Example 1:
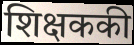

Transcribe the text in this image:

शिक्षककी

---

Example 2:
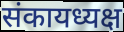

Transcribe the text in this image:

संकायध्यक्ष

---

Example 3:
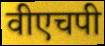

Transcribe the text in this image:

वीएचपी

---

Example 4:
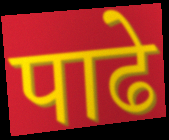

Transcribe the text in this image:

पाढे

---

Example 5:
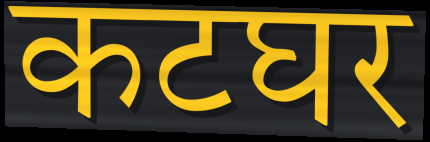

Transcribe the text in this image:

कटघर